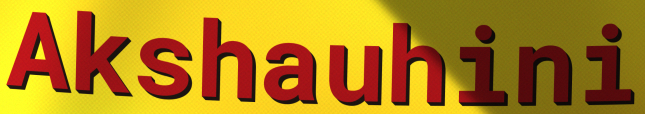
Akshauhini